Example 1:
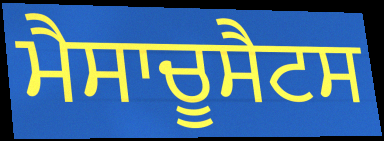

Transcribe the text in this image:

ਮੈਸਾਚੂਸੈਟਸ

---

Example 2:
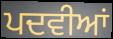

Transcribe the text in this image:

ਪਦਵੀਆਂ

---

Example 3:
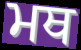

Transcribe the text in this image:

ਮਥ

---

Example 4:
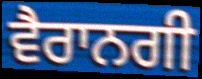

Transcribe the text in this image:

ਵੈਰਾਨਗੀ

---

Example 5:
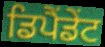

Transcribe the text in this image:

ਡਿਪੈਂਡੇਂਟ